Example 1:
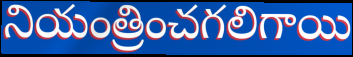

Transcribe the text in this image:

నియంత్రించగలిగాయి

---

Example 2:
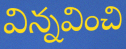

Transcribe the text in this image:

విన్నవించి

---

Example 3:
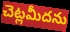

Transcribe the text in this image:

చెట్లమీదను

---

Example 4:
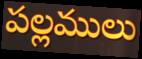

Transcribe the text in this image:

పల్లములు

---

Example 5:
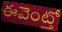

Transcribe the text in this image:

ఈవెంట్తో